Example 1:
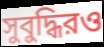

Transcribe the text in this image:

সুবুদ্ধিরও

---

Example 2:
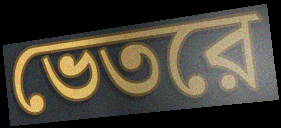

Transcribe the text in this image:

ভেতরে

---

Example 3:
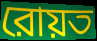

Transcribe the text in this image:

রোয়ত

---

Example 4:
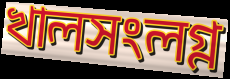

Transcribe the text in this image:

খালসংলগ্ন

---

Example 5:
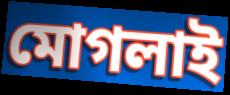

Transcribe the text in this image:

মোগলাই